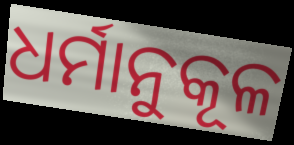
ଧର୍ମାନୁକୂଳ